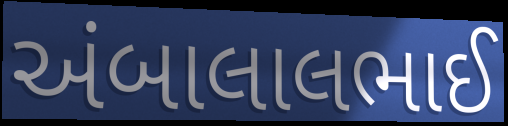
અંબાલાલભાઈ